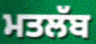
ਮਤਲੱਬ